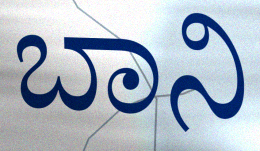
ಬಾನಿ